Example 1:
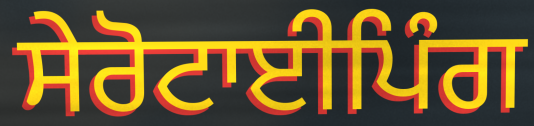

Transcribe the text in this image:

ਸੇਰੋਟਾਈਪਿੰਗ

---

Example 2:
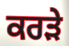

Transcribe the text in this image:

ਕਰੜੇ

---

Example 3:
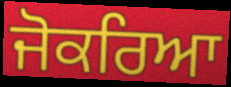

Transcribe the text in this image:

ਜੋਕਰਿਆ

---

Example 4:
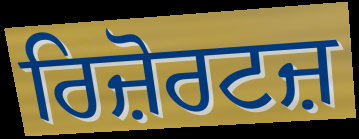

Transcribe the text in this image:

ਰਿਜ਼ੋਰਟਜ਼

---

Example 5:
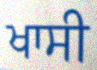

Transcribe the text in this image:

ਖਾਸੀ